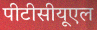
पीटीसीयूएल